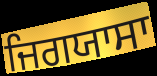
ਜਿਗਯਾਸਾ